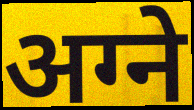
अग्ने